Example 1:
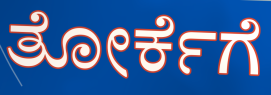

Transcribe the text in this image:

ತೋರ್ಕೆಗೆ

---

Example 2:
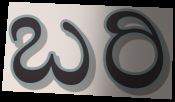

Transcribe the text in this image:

ಬರಿ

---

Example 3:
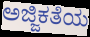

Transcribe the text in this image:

ಅಜ್ಜಿಕತೆಯ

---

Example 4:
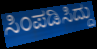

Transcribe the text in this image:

ಸಿಂಪಡಿಸಿದ್ದು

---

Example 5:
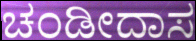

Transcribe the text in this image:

ಚಂಡೀದಾಸ